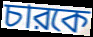
চারকে